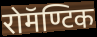
रोमॅण्टिक